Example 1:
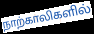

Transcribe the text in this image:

நாற்காலிகளில்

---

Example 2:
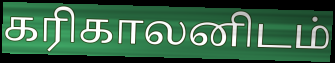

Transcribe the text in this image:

கரிகாலனிடம்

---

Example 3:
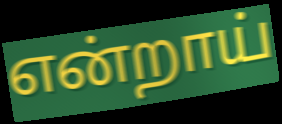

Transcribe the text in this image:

என்றாய்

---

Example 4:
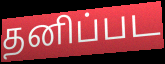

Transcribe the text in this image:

தனிப்பட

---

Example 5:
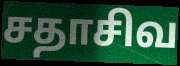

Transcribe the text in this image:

சதாசிவ